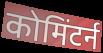
कोमिंटर्न